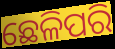
ଛେଳିପରି